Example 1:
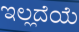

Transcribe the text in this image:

ಇಲ್ಲದೆಯೆ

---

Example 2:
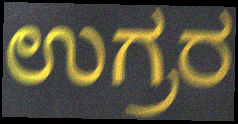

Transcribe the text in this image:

ಉಗ್ರರ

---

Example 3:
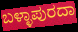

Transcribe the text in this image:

ಬಳ್ಳಾಪುರದಾ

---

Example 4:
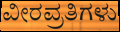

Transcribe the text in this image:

ವೀರವ್ರತಿಗಳು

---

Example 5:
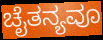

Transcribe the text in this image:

ಚೈತನ್ಯವೂ